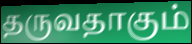
தருவதாகும்